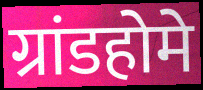
ग्रांडहोमे